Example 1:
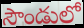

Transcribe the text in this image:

సౌండులో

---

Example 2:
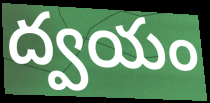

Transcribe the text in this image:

ద్వయం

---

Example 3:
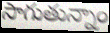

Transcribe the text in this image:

సాగుతున్నాం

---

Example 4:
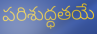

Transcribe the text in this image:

పరిశుద్ధతయే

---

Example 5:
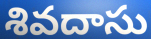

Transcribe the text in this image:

శివదాసు